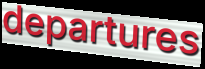
departures